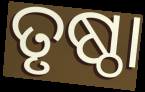
ତୃଷ୍ଠା